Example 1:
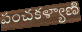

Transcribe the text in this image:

పంచకళ్యాణి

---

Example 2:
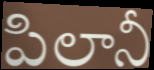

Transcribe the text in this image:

పిలానీ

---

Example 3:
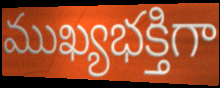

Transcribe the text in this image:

ముఖ్యభక్తిగా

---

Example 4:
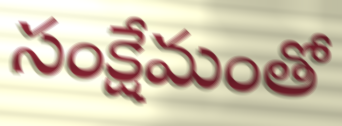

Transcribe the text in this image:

సంక్షేమంతో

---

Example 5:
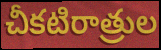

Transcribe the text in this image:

చీకటిరాత్రుల